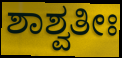
ಶಾಶ್ವತೀಃ